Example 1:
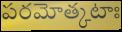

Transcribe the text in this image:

పరమోత్కటాః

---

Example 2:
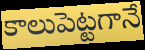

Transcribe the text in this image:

కాలుపెట్టగానే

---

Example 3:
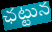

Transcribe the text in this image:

ఛట్టున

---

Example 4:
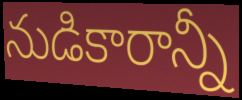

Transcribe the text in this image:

నుడికారాన్నీ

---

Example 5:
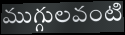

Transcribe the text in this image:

ముగ్గులవంటి